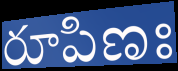
రూపిణః